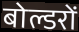
बोल्डरों